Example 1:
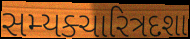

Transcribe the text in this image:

સમ્યક્ચારિત્રદશા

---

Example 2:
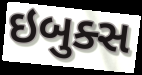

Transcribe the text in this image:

ઇબુક્સ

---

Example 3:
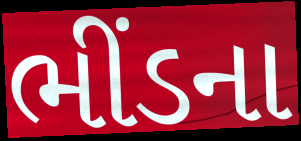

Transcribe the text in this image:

ભીંડના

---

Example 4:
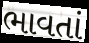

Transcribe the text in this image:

ભાવતાં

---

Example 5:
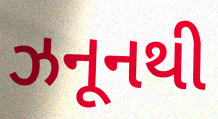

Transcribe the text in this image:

ઝનૂનથી